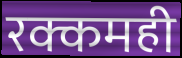
रक्कमही